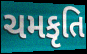
ચમકૃતિ